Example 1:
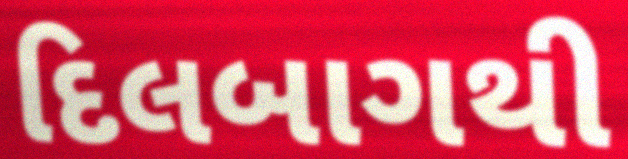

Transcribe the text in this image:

દિલબાગથી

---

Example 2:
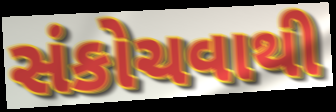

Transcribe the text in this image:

સંકોચવાથી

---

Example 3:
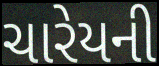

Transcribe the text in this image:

ચારેયની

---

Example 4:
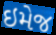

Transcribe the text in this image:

ઇમેજ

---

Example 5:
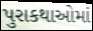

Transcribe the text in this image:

પુરાકથાઓમાં